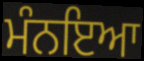
ਮੰਨਇਆ